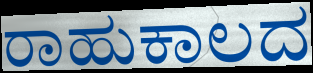
ರಾಹುಕಾಲದ